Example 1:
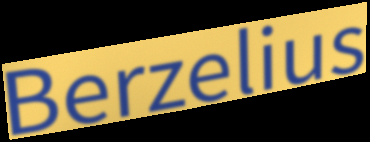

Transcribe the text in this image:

Berzelius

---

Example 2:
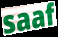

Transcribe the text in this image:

saaf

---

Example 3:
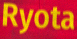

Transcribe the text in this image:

Ryota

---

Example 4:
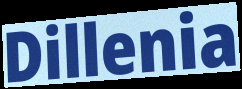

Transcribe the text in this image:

Dillenia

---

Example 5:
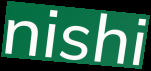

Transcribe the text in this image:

nishi